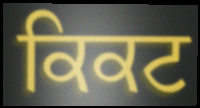
ਕਿਕਟ